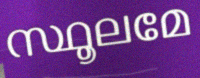
സ്ഥൂലമേ